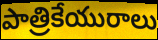
పాత్రికేయురాలు